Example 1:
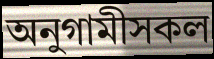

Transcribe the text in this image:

অনুগামীসকল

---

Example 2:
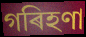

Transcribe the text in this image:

গৰিহণা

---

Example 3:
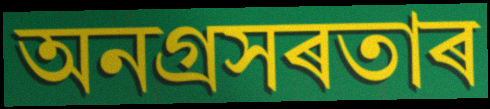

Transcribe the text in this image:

অনগ্ৰসৰতাৰ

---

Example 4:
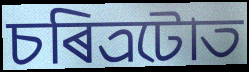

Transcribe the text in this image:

চৰিত্ৰটোত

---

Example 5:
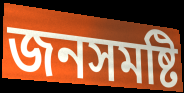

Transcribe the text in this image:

জনসমষ্টি